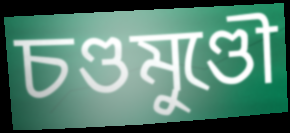
চণ্ডমুণ্ডৌ